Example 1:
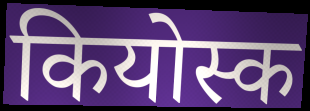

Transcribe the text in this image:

कियोस्क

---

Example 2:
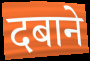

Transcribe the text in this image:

दबाने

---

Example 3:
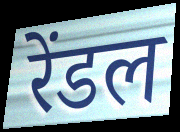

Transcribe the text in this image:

रेंडल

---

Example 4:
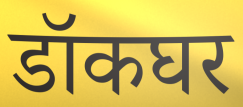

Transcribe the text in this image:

डॉकघर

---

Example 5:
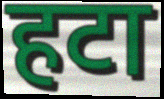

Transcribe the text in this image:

हटा